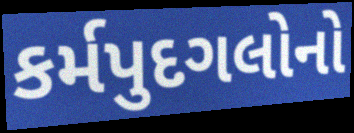
કર્મપુદગલોનો